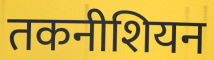
तकनीशियन